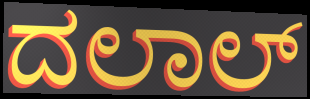
ದಲಾಲ್